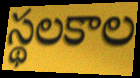
స్థలకాల